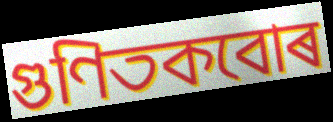
গুণিতকবোৰ